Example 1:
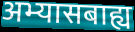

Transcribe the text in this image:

अभ्यासबाह्य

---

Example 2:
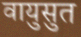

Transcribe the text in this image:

वायुसुत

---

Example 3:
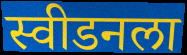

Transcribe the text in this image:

स्वीडनला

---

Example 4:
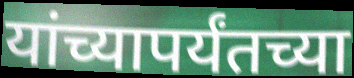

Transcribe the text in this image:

यांच्यापर्यंतच्या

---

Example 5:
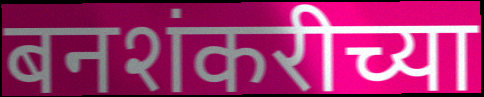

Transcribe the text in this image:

बनशंकरीच्या